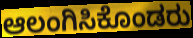
ಆಲಂಗಿಸಿಕೊಂಡರು